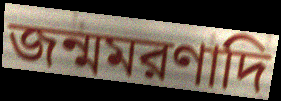
জন্মমরণাদি